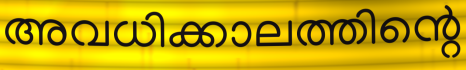
അവധിക്കാലത്തിന്റെ